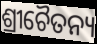
ଶ୍ରୀଚୈତନ୍ୟ